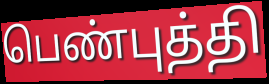
பெண்புத்தி